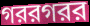
গররগরর